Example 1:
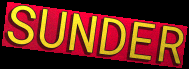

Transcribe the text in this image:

SUNDER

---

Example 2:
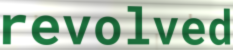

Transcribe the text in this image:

revolved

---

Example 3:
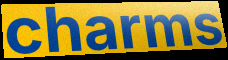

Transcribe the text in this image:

charms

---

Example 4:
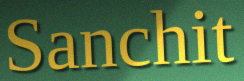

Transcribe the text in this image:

Sanchit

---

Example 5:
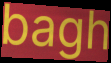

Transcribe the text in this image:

bagh